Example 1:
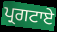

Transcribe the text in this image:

ਪ੍ਰਗਟਾਏ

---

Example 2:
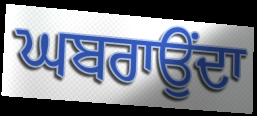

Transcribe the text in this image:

ਘਬਰਾਉਂਦਾ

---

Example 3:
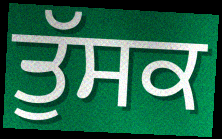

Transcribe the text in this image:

ਤੁੱਸਕ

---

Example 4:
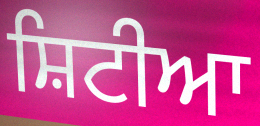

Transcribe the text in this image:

ਸ਼ਿਟੀਆ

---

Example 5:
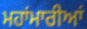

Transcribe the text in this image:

ਮਹਾਂਮਾਰੀਆਂ